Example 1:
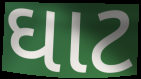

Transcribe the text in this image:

ઘાટ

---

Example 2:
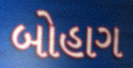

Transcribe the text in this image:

બોહાગ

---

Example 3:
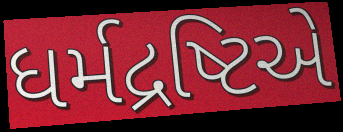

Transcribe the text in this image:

ધર્મદ્રષ્ટિએ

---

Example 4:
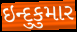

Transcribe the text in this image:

ઇન્દુકુમાર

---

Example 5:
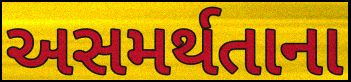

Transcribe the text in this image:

અસમર્થતાના